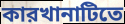
কারখানাটিতে